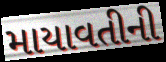
માયાવતીની